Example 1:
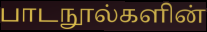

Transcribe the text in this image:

பாடநூல்களின்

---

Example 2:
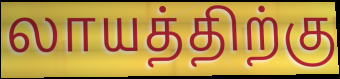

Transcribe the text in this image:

லாயத்திற்கு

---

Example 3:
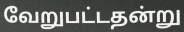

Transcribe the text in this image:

வேறுபட்டதன்று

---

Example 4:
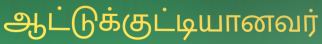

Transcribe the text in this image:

ஆட்டுக்குட்டியானவர்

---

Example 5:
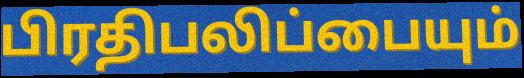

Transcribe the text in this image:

பிரதிபலிப்பையும்